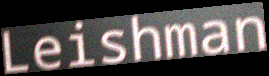
Leishman